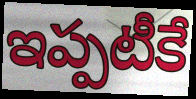
ఇప్పటీకే